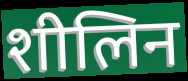
शीलिन